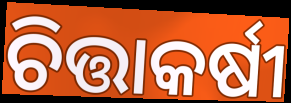
ଚିତ୍ତାକର୍ଷୀ